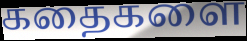
கதைகளை